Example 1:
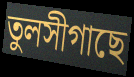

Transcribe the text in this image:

তুলসীগাছে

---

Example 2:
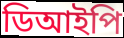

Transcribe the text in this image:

ডিআইপি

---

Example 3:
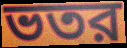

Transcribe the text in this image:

ভতর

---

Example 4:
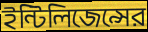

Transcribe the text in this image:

ইন্টিলিজেন্সের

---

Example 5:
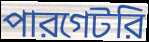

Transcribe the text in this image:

পারগেটরি